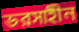
ভরসাহীন